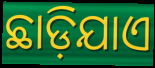
ଛାଡ଼ିଯାଏ